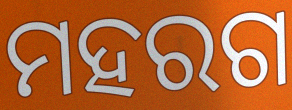
ମହରଗ